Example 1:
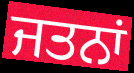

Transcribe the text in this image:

ਜਤਨਾਂ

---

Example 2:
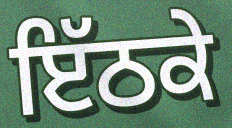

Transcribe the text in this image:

ਇੱਠਕੇ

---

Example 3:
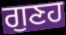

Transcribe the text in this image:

ਗੁਣਹ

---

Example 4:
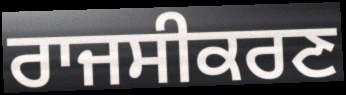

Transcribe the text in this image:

ਰਾਜਸੀਕਰਣ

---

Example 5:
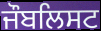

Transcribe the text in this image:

ਜੌਬਲਿਸਟ